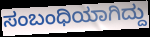
ಸಂಬಂಧಿಯಾಗಿದ್ದು